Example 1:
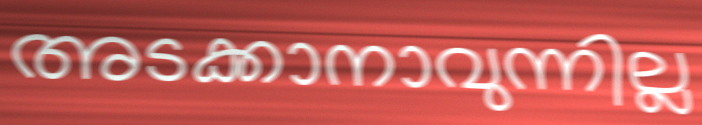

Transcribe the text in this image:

അടക്കാനാവുന്നില്ല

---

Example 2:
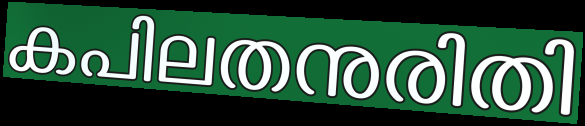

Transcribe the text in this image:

കപിലതനുരിതി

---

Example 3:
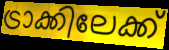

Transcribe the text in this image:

ട്രാക്കിലേക്ക്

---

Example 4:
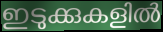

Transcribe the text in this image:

ഇടുക്കുകളിൽ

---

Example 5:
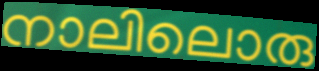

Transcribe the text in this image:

നാലിലൊരു